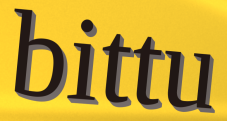
bittu